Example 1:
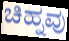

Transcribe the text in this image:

ಚಿಹ್ನವು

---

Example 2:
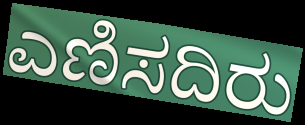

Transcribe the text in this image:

ಎಣಿಸದಿರು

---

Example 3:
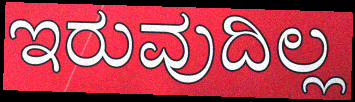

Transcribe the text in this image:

ಇರುವುದಿಲ್ಲ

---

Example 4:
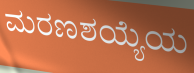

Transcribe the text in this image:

ಮರಣಶಯ್ಯೆಯ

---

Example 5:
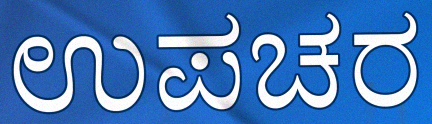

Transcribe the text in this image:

ಉಪಚರ